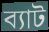
ব্যাট